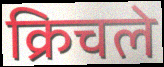
क्रिचले